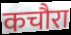
कचौरा